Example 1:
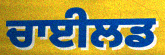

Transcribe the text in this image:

ਚਾਈਲਡ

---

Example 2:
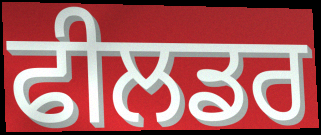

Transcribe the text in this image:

ਫੀਲਡਰ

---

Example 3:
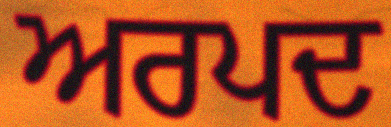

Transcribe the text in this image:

ਅਰਪਦ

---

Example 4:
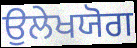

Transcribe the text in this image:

ਉਲੇਖਯੋਗ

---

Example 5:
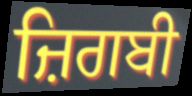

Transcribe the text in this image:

ਜ਼ਿਗਬੀ